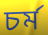
চর্ম